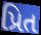
પ્રિત